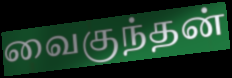
வைகுந்தன்